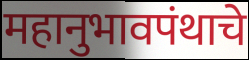
महानुभावपंथाचे